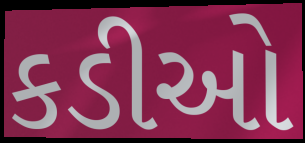
કડીઓ